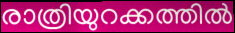
രാത്രിയുറക്കത്തിൽ